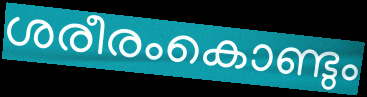
ശരീരംകൊണ്ടും